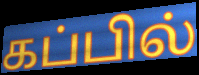
கப்பில்